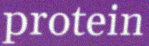
protein